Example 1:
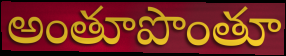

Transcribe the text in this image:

అంతూపొంతూ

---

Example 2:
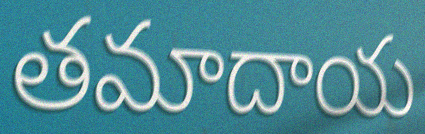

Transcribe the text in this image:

తమాదాయ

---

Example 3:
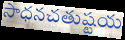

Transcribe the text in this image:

సాధనచతుష్టయ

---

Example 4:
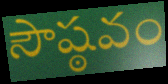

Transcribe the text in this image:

సౌష్ఠవం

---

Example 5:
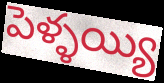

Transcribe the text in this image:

పెళ్ళయ్యి